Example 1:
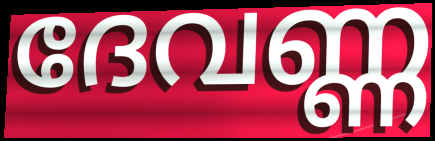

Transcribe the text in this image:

ദേവണ്ണ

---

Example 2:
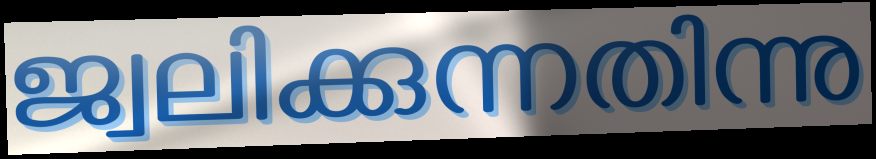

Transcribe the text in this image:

ജ്വലിക്കുന്നതിന്നു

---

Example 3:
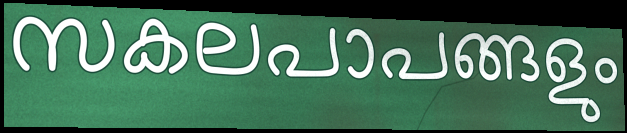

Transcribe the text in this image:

സകലപാപങ്ങളും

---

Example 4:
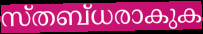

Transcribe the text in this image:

സ്തബ്ധരാകുക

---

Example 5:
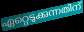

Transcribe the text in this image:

ഏറ്റെടുക്കുന്നതിന്